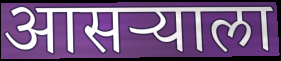
आसऱ्याला